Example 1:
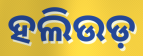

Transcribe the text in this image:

ହଲିଉଡ଼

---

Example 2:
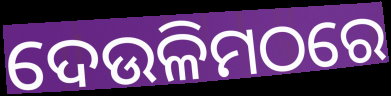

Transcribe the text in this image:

ଦେଉଳିମଠରେ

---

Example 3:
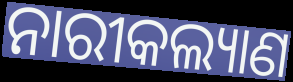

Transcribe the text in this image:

ନାରୀକଲ୍ୟାଣ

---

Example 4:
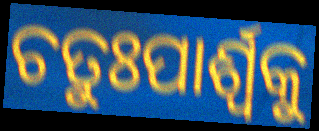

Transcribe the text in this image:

ଚତୁଃପାର୍ଶ୍ୱକୁ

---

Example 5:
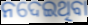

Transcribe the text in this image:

ନଦେଇଥିବା